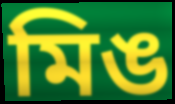
মিঙ